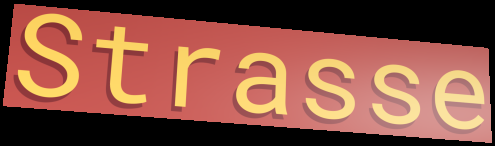
Strasse